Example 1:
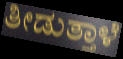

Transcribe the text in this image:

ತೀಡುತ್ತಾಳೆ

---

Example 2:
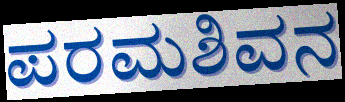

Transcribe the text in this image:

ಪರಮಶಿವನ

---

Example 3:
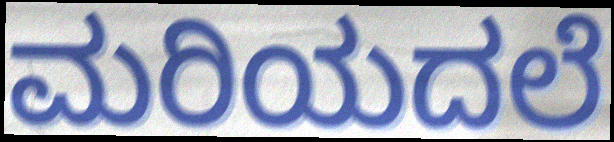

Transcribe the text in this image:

ಮರಿಯದಲೆ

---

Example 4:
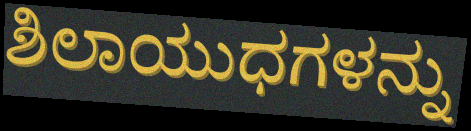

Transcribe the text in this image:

ಶಿಲಾಯುಧಗಳನ್ನು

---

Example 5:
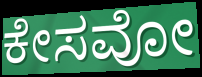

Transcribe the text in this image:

ಕೇಸವೋ